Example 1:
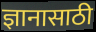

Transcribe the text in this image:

ज्ञानासाठी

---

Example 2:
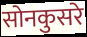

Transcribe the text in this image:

सोनकुसरे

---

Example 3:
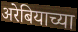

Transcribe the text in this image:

अरेबियाच्या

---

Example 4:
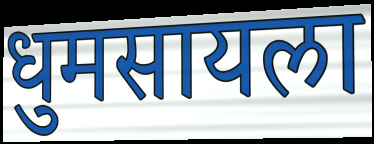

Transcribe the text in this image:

धुमसायला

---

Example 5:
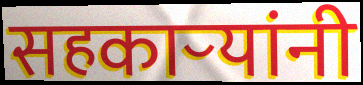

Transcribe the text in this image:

सहकाऱ्यांनी